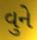
વુને